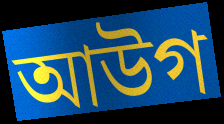
আউগ